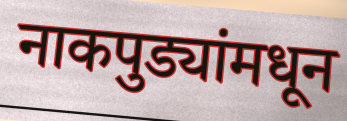
नाकपुड्यांमधून